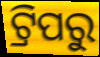
ଟ୍ରିପରୁ